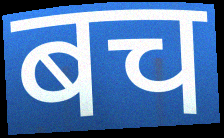
बच